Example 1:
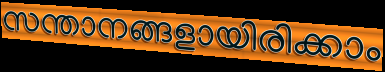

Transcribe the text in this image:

സന്താനങ്ങളായിരിക്കാം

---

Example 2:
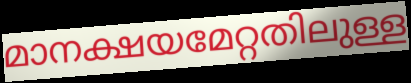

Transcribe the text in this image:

മാനക്ഷയമേറ്റതിലുള്ള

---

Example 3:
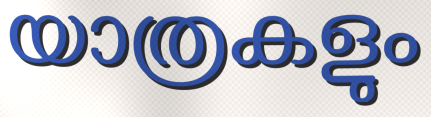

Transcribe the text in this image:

യാത്രകളും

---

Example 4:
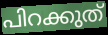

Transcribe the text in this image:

പിറക്കുത്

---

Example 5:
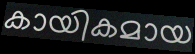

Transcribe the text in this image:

കായികമായ